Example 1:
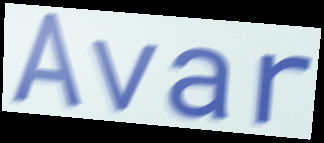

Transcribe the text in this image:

Avar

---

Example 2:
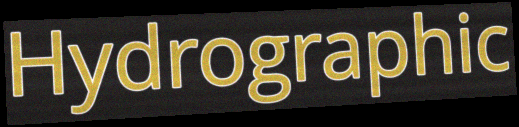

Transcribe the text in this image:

Hydrographic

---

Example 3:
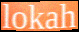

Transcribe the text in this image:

lokah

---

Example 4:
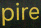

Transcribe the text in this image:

pire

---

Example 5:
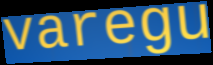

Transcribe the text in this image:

varegu